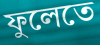
ফুলেতে